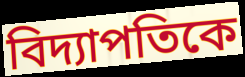
বিদ্যাপতিকে